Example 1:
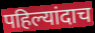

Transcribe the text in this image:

पहिल्यांदाच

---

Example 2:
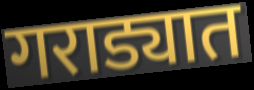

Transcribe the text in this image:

गराड्यात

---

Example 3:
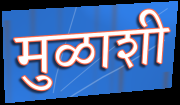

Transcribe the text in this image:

मुळाशी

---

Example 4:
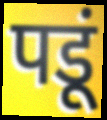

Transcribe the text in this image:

पडूं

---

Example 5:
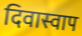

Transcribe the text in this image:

दिवास्वाप